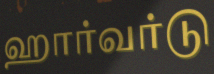
ஹார்வர்டு